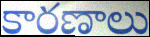
కారణాలు